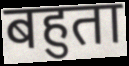
बहुता